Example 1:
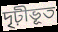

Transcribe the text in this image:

দৃঢ়ীভূত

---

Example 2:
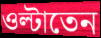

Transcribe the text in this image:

ওল্টাতেন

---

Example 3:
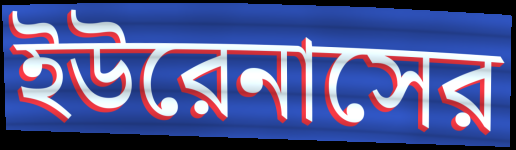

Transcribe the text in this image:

ইউরেনাসের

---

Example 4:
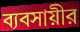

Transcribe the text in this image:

ব্যবসায়ীর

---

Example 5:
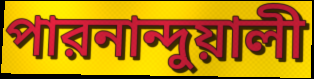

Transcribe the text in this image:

পারনান্দুয়ালী